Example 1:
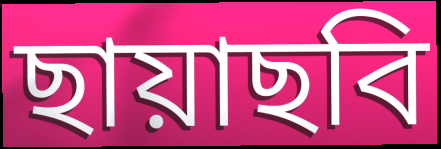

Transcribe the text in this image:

ছায়াছবি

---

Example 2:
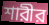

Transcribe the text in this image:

শারীর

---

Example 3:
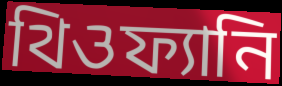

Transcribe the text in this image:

থিওফ্যানি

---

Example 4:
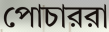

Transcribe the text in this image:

পোচাররা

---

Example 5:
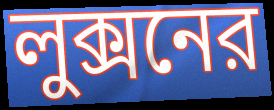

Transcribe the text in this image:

লুক্সনের